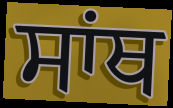
ਸਾਂਥ